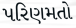
પરિણમતો